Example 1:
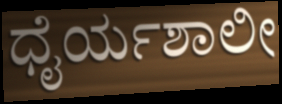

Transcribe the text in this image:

ಧೈರ್ಯಶಾಲೀ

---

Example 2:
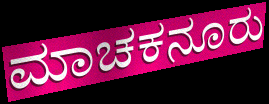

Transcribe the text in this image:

ಮಾಚಕನೂರು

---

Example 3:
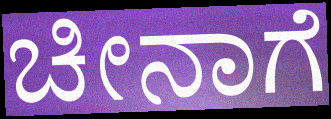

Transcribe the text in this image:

ಚೀನಾಗೆ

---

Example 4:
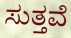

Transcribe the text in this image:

ಸುತ್ತವೆ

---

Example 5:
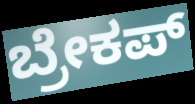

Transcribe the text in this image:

ಬ್ರೇಕಪ್